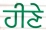
ਹੀਣੇ